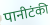
पानीटंकी